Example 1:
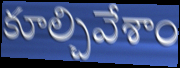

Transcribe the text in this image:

కూల్చివేశాం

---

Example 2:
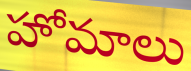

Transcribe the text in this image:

హోమాలు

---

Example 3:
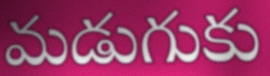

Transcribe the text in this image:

మడుగుకు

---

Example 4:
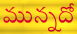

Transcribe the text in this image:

మున్నదో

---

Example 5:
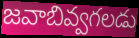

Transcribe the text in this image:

జవాబివ్వగలడు